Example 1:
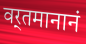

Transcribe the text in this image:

वर्तमानानं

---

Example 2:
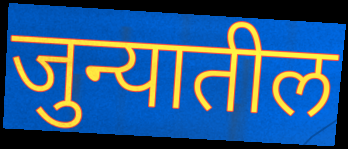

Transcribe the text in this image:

जुन्यातील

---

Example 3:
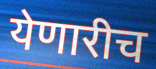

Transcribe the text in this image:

येणारीच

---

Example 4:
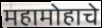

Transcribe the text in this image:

महामोहाचे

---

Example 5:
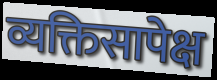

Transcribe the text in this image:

व्यक्तिसापेक्ष